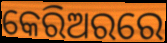
କେରିଅରରେ